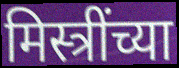
मिस्त्रींच्या